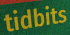
tidbits